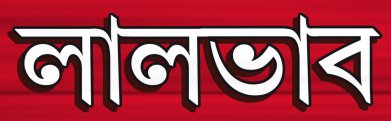
লালভাব